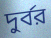
দুর্বর